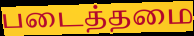
படைத்தமை